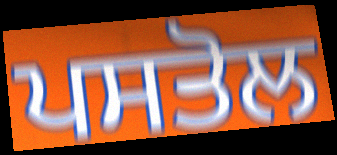
ਪਸਤੋਲ